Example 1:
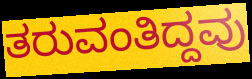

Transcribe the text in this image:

ತರುವಂತಿದ್ದವು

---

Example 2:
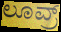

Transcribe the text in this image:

ಲೂವ್ರ್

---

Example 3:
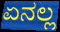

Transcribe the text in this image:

ಏನಲ್ಲ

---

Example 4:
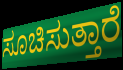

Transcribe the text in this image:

ಸೂಚಿಸುತ್ತಾರೆ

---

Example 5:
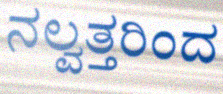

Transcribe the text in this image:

ನಲ್ವತ್ತರಿಂದ